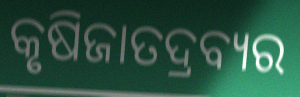
କୃଷିଜାତଦ୍ରବ୍ୟର